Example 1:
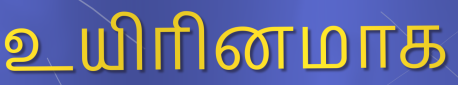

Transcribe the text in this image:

உயிரினமாக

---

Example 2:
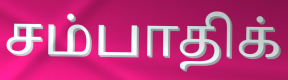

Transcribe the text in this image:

சம்பாதிக்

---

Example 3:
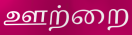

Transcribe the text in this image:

ஊற்றை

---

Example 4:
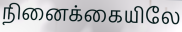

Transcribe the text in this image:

நினைக்கையிலே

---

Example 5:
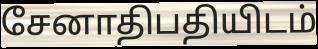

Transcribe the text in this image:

சேனாதிபதியிடம்